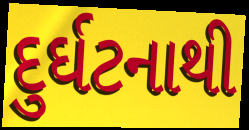
દુર્ઘટનાથી